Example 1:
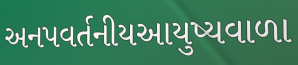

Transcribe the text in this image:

અનપવર્તનીયઆયુષ્યવાળા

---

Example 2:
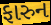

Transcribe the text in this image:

ફારુન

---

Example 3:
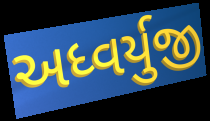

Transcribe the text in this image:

અધ્વર્યુજી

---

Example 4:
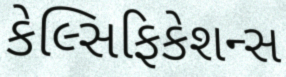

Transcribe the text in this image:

કેલ્સિફિકેશન્સ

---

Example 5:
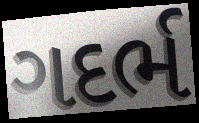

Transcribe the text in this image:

ગદર્ભ